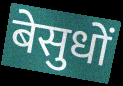
बेसुधों